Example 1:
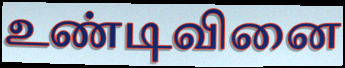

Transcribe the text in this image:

உண்டிவினை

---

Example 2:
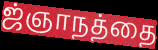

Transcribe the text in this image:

ஜ்ஞாநத்தை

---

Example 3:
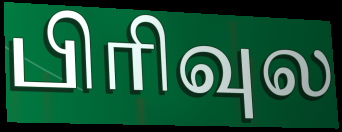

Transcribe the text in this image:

பிரிவுல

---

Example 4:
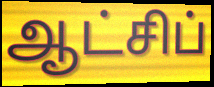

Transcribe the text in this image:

ஆட்சிப்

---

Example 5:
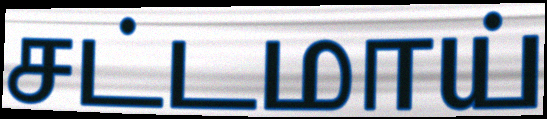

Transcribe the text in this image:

சட்டமாய்